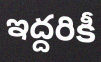
ఇద్దరికీ